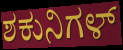
ಶಕುನಿಗಳ್